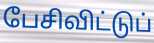
பேசிவிட்டுப்